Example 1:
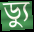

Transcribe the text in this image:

ড্যু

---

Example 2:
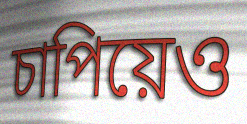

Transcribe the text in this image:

চাপিয়েও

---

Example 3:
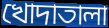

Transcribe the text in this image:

খোদাতালা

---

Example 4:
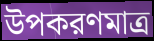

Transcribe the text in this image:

উপকরণমাত্র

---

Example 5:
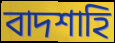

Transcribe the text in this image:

বাদশাহি